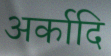
अर्कादि